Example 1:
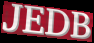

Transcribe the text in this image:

JEDB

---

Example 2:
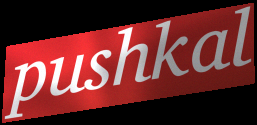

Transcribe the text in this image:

pushkal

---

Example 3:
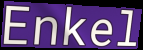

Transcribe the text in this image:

Enkel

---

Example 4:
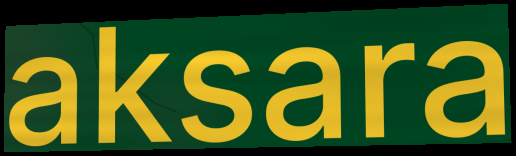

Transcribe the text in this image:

aksara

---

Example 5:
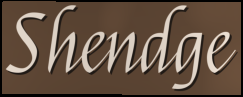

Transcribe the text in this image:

Shendge